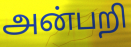
அன்பறி